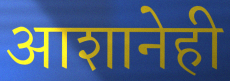
आशानेही